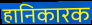
हानिकारक